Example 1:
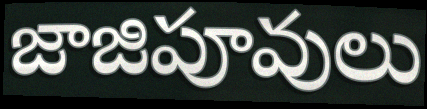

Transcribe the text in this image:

జాజిపూవులు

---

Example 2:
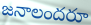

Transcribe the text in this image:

జనాలందరూ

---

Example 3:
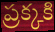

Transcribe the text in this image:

ప్రక్కకి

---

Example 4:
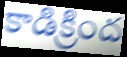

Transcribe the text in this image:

కాడిక్రింద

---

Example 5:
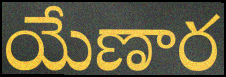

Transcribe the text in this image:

యేణార